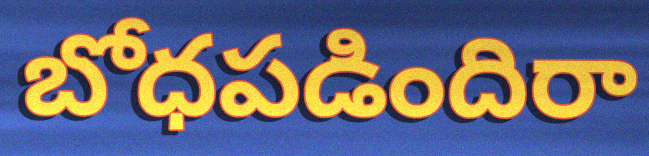
బోధపడిందిరా